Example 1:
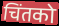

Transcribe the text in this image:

चिंतको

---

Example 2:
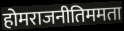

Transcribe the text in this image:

होमराजनीतिममता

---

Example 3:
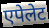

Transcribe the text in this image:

एपेलेट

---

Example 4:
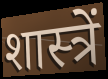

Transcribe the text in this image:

शास्त्रें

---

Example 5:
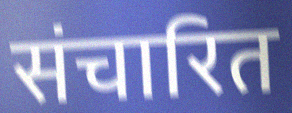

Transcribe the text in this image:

संचारित